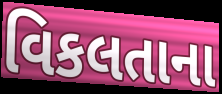
વિકલતાના